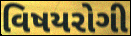
વિષયરોગી